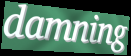
damning